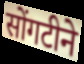
सोंगटीने